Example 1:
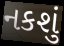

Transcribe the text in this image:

નકશું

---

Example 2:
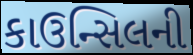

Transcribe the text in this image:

કાઉન્સિલની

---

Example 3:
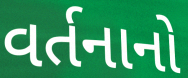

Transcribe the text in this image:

વર્તનાનો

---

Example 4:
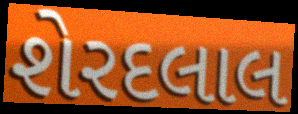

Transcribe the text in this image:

શેરદલાલ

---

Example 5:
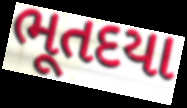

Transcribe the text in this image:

ભૂતદયા